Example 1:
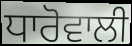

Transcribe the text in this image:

ਧਾਰੋਵਾਲੀ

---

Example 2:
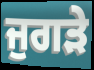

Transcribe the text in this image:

ਜੁਗੜੇ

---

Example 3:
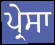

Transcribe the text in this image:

ਪ੍ਰੇਸਾ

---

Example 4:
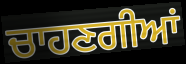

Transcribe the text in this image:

ਚਾਹਣਗੀਆਂ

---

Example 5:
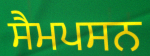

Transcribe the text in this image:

ਸੈਮਪਸਨ